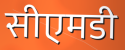
सीएमडी